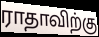
ராதாவிற்கு